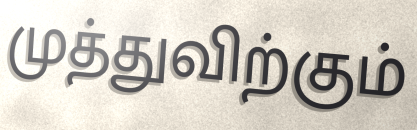
முத்துவிற்கும்